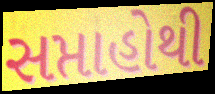
સપ્તાહોથી